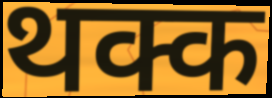
थक्क